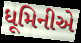
ધૂમિનીએ